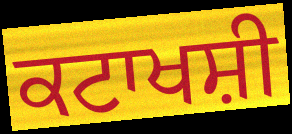
ਕਟਾਖਸ਼ੀ